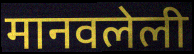
मानवलेली